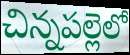
చిన్నపల్లెలో